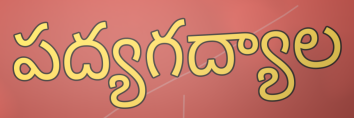
పద్యగద్యాల